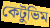
কেটুভিম